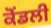
ਕੋਂਡਲੀ